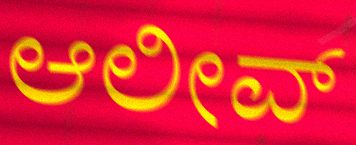
ಆಲೀವ್